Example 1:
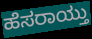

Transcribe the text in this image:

ಹೆಸರಾಯ್ತು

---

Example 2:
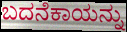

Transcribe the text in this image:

ಬದನೆಕಾಯನ್ನು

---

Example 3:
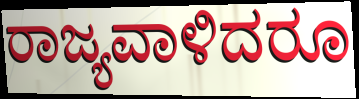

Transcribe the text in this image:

ರಾಜ್ಯವಾಳಿದರೂ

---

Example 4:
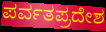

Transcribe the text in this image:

ಪರ್ವತಪ್ರದೇಶ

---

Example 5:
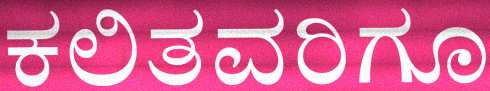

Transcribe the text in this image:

ಕಲಿತವರಿಗೂ